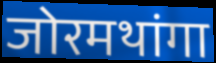
जोरमथांगा